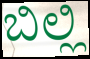
ಬಿಲ್ಲಿ